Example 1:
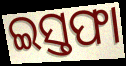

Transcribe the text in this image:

ଇସ୍ତଫା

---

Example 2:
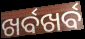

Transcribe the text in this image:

ଖର୍ବଖର୍ବ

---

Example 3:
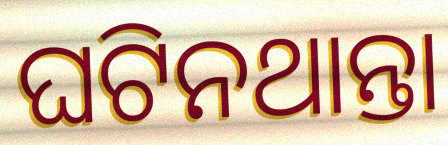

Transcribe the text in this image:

ଘଟିନଥାନ୍ତା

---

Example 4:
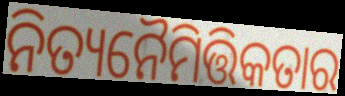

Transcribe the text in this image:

ନିତ୍ୟନୈମିତ୍ତିକତାର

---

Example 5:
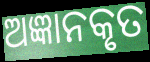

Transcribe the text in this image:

ଅଜ୍ଞାନକୃତ